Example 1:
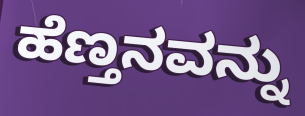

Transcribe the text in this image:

ಹೆಣ್ತನವನ್ನು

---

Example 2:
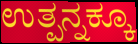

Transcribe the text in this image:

ಉತ್ಪನ್ನಕ್ಕೂ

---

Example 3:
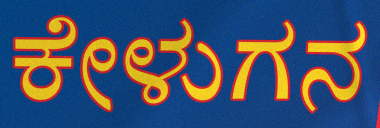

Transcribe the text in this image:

ಕೇಳುಗನ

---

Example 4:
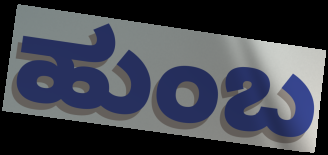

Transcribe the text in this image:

ಹುಂಬ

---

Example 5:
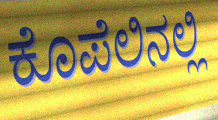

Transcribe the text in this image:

ಕೊಪೆಲಿನಲ್ಲಿ